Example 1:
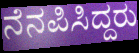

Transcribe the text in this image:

ನೆನಪಿಸಿದ್ದರು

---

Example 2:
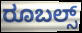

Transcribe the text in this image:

ರೂಬಲ್ಸ್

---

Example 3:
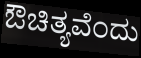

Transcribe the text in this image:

ಔಚಿತ್ಯವೆಂದು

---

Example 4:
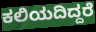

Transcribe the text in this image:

ಕಲಿಯದಿದ್ದರೆ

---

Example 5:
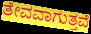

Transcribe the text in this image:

ತೇವವಾಗುತ್ತವೆ